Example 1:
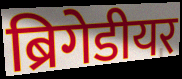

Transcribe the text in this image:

ब्रिगेडीयर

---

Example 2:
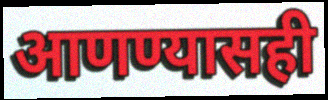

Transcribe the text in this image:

आणण्यासही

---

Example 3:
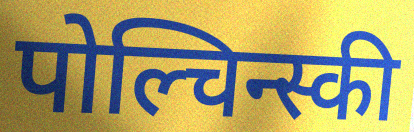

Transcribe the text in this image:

पोल्चिन्स्की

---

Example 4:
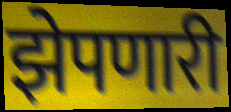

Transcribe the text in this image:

झेपणारी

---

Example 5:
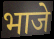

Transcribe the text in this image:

भाजे